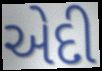
એદી